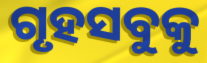
ଗୃହସବୁକୁ